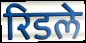
रिडले